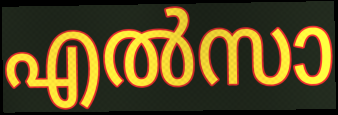
എൽസാ